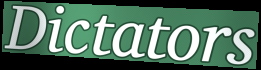
Dictators